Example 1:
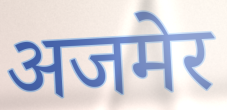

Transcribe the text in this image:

अजमेर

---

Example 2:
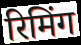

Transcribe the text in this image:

रिमिंग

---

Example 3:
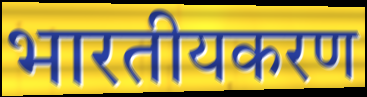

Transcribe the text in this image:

भारतीयकरण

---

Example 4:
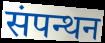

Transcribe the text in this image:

संपन्थन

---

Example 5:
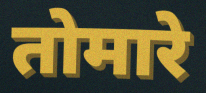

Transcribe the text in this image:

तोमारे